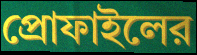
প্রোফাইলের